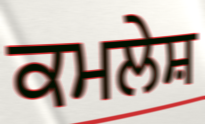
ਕਮਲੇਸ਼